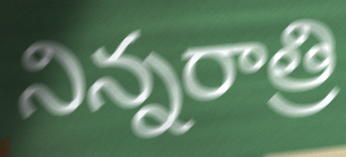
నిన్నరాత్రి